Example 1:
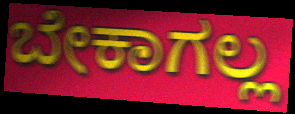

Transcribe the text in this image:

ಬೇಕಾಗಲ್ಲ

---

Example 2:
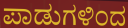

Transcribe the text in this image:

ಪಾಡುಗಳಿಂದ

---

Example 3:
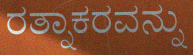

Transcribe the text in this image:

ರತ್ನಾಕರವನ್ನು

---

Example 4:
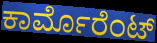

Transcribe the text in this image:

ಕಾರ್ಮೊರೆಂಟ್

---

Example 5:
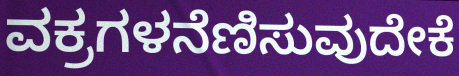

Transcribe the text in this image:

ವಕ್ರಗಳನೆಣಿಸುವುದೇಕೆ